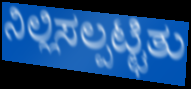
ನಿಲ್ಲಿಸಲ್ಪಟ್ಟಿತು